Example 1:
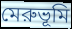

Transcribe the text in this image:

মেরুভূমি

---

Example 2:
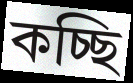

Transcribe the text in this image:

কচ্ছি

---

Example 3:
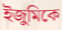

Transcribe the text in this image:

ইজুমিকে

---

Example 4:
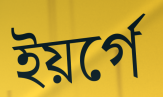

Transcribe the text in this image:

ইয়র্গে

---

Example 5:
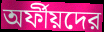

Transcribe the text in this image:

অর্ফীয়দের